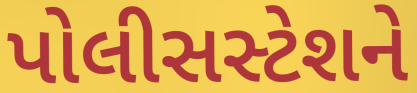
પોલીસસ્ટેશને